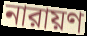
নারায়ণ